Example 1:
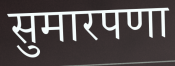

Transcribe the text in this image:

सुमारपणा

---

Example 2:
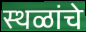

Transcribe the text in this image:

स्थळांचे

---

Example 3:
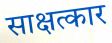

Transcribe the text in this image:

साक्षत्कार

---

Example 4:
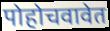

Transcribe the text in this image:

पोहोचवावेत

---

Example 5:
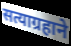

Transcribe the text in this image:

सत्याग्रहाने